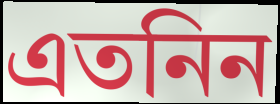
এতনিন